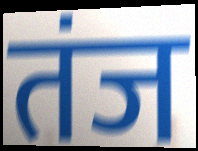
तंज